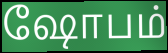
ஷோபம்